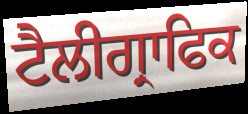
ਟੈਲੀਗ੍ਰਾਫਿਕ